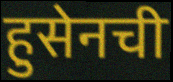
हुसेनची